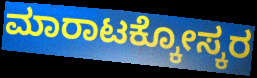
ಮಾರಾಟಕ್ಕೋಸ್ಕರ